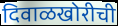
दिवाळखोरीची